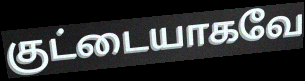
குட்டையாகவே